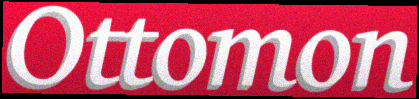
Ottomon